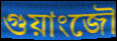
গুয়াংজৌ